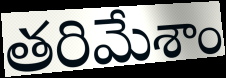
తరిమేశాం